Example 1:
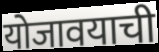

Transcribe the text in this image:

योजावयाची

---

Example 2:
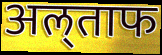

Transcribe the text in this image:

अल्ताफ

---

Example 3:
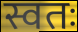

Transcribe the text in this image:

स्वतः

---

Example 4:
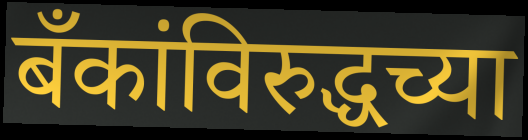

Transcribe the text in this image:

बँकांविरुद्धच्या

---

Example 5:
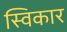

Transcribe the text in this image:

स्विकार